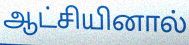
ஆட்சியினால்